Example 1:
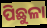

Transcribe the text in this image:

ପିଛୁଳା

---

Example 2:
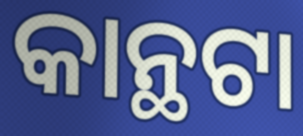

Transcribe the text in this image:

କାନ୍ଥଟା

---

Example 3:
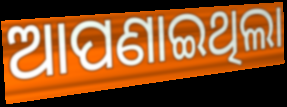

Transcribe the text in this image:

ଆପଣାଇଥିଲା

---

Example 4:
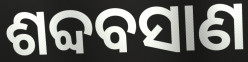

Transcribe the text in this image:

ଶବ୍ଦବସାଣ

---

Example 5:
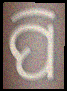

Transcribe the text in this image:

ପି